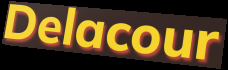
Delacour